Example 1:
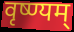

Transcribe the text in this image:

वृष्ण्यम्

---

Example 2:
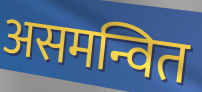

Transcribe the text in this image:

असमन्वित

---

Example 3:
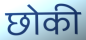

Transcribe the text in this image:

छोकी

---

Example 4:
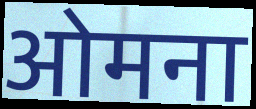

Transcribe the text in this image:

ओमना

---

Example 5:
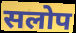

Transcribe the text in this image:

सलोप